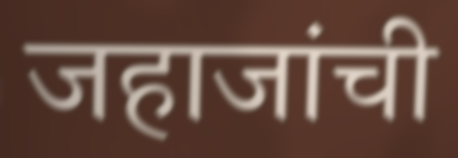
जहाजांची